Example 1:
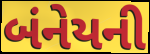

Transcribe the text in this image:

બંનેયની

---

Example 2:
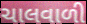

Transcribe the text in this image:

ચાલવાળી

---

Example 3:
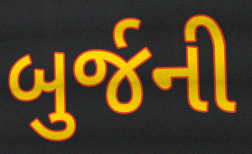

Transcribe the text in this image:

બુર્જની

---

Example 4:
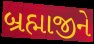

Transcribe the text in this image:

બ્રહ્માજીને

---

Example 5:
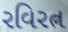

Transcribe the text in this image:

રવિરત્ન